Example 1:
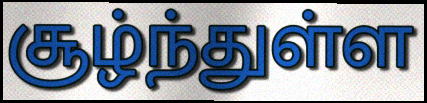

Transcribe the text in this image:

சூழ்ந்துள்ள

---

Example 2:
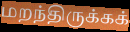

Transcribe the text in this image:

மறந்திருக்கக்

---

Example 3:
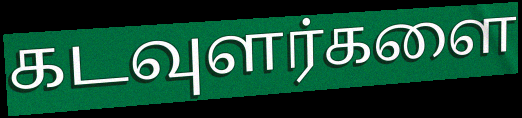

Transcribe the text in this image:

கடவுளர்களை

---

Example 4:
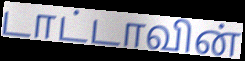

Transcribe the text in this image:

டாட்டாவின்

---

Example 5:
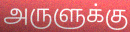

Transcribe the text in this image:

அருளுக்கு